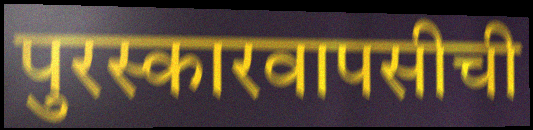
पुरस्कारवापसीची